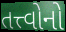
તત્ત્વોનો